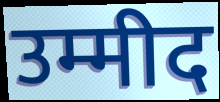
उम्मीद